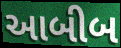
આબીબ